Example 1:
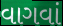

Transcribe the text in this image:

વાગવાં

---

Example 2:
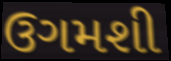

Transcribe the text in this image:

ઉગમશી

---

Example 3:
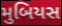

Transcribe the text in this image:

મુબિયસ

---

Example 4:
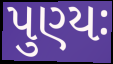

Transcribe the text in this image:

પુણ્યઃ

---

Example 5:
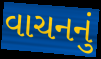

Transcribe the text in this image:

વાચનનું